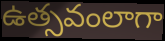
ఉత్సవంలాగా